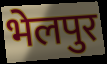
भेलपुर